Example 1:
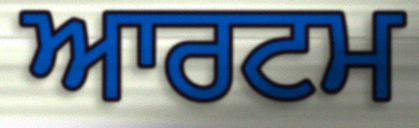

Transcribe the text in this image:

ਆਰਟਮ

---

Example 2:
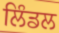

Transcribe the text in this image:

ਲਿੰਡਲ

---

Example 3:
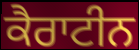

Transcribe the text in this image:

ਕੈਰਾਟੀਨ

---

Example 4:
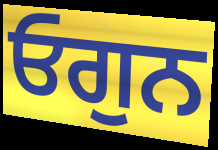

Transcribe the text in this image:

ਓਗੁਨ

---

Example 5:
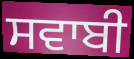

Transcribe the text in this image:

ਸਵਾਬੀ